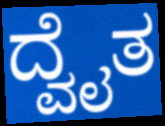
ದ್ವೈತ